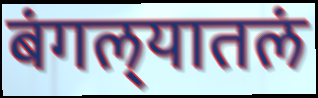
बंगल्यातलं